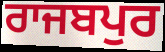
ਰਾਜਬਪੁਰ